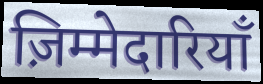
ज़िम्मेदारियाँ